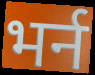
भर्न